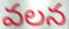
వలన